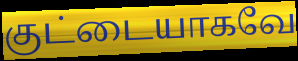
குட்டையாகவே